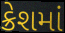
ક્રેશમાં